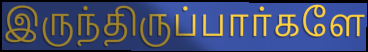
இருந்திருப்பார்களே